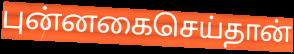
புன்னகைசெய்தான்